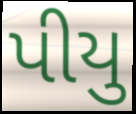
પીયુ